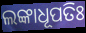
ଲଙ୍କାଧୂପତିଃ